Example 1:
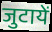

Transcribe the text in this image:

जुटायें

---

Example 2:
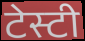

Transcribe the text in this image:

टेस्‍टी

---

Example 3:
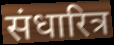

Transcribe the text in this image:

संधारित्र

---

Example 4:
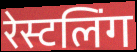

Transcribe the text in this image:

रेस्टलिंग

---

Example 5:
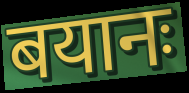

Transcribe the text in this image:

बयानः